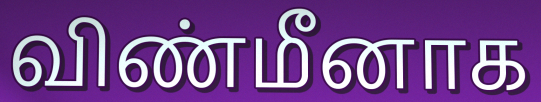
விண்மீனாக